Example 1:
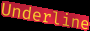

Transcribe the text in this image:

Underline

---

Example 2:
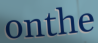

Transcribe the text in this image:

onthe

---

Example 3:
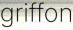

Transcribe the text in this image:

griffon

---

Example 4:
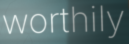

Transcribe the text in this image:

worthily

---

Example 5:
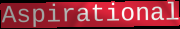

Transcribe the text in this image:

Aspirational